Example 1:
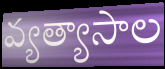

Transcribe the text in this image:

వ్యత్యాసాల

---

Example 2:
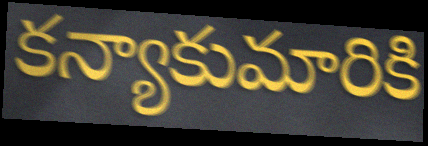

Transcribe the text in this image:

కన్యాకుమారికి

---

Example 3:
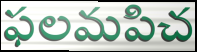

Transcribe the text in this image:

ఫలమపిచ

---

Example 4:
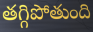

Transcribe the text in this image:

తగ్గిపోతుంది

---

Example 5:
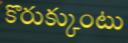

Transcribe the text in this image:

కొరుక్కుంటు